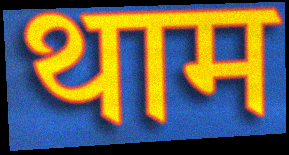
थाम